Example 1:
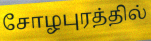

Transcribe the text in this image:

சோழபுரத்தில்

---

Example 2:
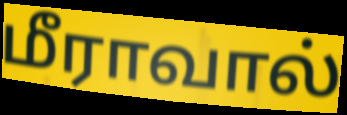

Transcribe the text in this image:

மீராவால்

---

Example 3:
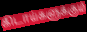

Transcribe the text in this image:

கிடாய்களுக்கும்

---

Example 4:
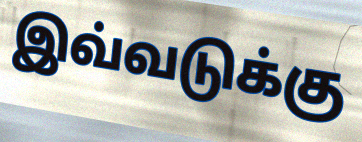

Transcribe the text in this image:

இவ்வடுக்கு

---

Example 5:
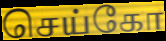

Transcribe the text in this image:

செய்கோ